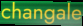
changale